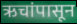
ऋचांपासून